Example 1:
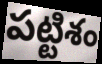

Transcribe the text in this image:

పట్టిశం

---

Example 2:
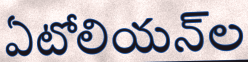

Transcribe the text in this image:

ఏటోలియన్‌ల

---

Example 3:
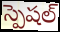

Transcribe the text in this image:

స్పెషల్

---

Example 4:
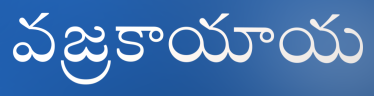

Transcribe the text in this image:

వజ్రకాయాయ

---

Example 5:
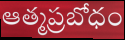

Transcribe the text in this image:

ఆత్మప్రబోధం